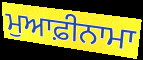
ਮੁਆਫ਼ੀਨਾਮਾ